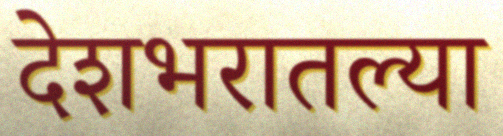
देशभरातल्या